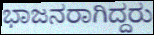
ಭಾಜನರಾಗಿದ್ದರು